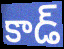
కాడ్